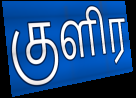
குளிர